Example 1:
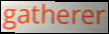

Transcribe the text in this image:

gatherer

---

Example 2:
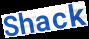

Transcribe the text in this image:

Shack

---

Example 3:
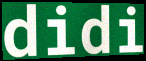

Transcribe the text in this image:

didi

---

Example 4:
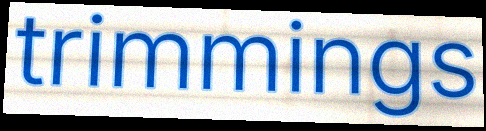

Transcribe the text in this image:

trimmings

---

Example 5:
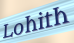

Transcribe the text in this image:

Lohith